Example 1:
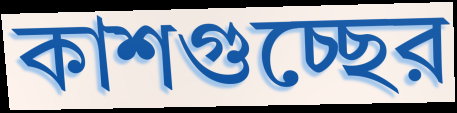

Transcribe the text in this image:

কাশগুচ্ছের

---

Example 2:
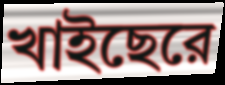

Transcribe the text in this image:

খাইছেরে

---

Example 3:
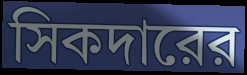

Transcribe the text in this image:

সিকদারের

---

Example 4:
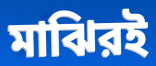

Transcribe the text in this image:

মাঝিরই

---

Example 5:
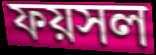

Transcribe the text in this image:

ফয়সল